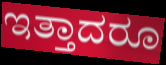
ಇತ್ತಾದರೂ